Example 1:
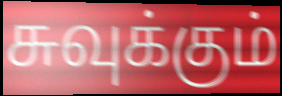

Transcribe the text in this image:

சுவுக்கும்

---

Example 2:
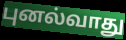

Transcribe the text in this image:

புனல்வாது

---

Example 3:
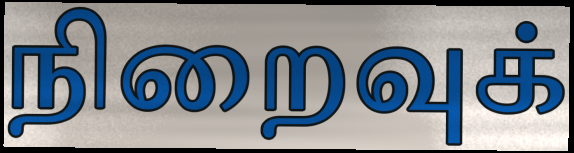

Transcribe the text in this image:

நிறைவுக்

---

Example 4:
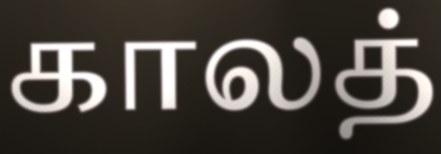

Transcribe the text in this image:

காலத்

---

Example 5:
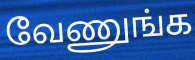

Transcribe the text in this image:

வேணுங்க